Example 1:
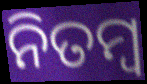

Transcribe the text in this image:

ନିତମ୍ବ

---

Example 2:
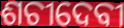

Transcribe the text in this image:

ଶଚୀଦେବୀ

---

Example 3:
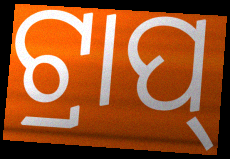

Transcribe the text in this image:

ଟ୍ରାପ୍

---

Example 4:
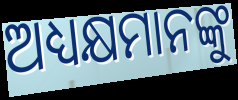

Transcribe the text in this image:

ଅଧ୍ୟକ୍ଷମାନଙ୍କୁ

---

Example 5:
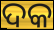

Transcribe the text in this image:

ଦକ